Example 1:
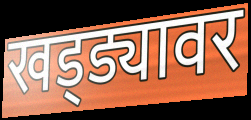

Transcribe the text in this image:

खड्ड्यावर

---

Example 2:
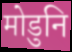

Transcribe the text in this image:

मोडुनि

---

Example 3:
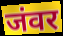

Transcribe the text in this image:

जंवर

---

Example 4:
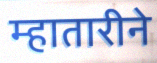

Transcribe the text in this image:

म्हातारीने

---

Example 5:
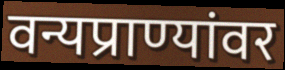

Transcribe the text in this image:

वन्यप्राण्यांवर